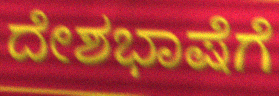
ದೇಶಭಾಷೆಗೆ